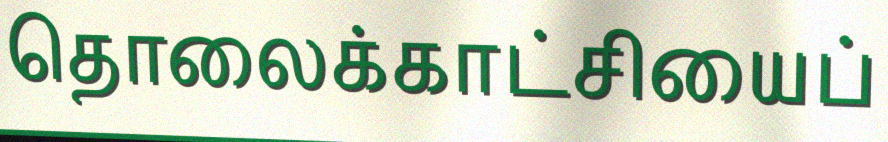
தொலைக்காட்சியைப்